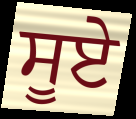
ਸੂਏ